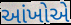
આંખોએ